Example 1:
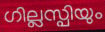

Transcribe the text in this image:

ഗില്ലസ്പിയും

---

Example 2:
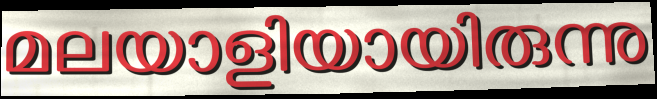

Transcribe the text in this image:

മലയാളിയായിരുന്നു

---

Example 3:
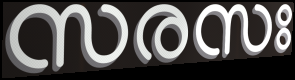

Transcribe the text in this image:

സരസഃ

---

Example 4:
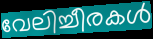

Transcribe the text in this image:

വേലിച്ചീരകൾ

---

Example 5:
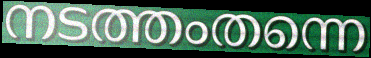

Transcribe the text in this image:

നടത്തംതന്നെ